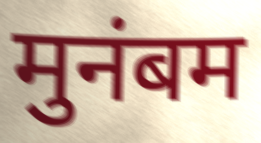
मुनंबम